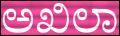
ಅಖಿಲಾ